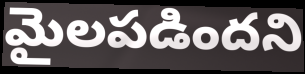
మైలపడిందని